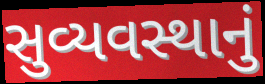
સુવ્યવસ્થાનું